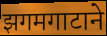
झगमगाटाने